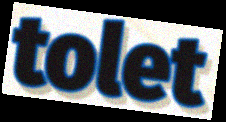
tolet